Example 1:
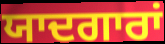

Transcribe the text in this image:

ਯਾਦਗਾਰਾਂ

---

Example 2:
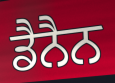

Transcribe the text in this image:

ਡੈਨੈਨ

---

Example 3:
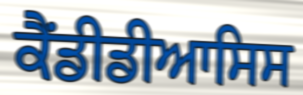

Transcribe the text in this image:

ਕੈਂਡੀਡੀਆਸਿਸ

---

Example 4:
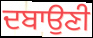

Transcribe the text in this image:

ਦਬਾਉਣੀ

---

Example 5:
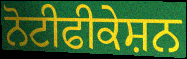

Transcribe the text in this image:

ਨੋਟੀਫੀਕੇਸ਼ਨ